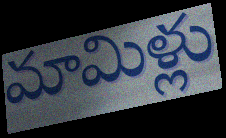
మామిళ్లు